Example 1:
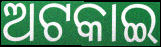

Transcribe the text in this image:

ଅଟକାଇ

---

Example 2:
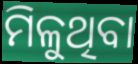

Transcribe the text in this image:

ମିଳୁଥିବା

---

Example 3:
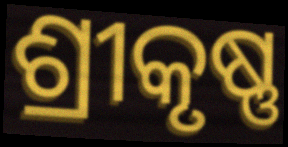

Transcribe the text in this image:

ଶ୍ରୀକୃଷ୍ଣ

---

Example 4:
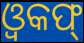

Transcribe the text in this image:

ଓ୍ୱକଫ୍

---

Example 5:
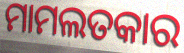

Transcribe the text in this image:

ମାମଲତକାର